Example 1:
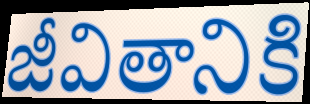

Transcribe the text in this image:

జీవితానికి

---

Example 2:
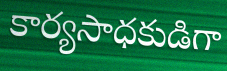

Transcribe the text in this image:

కార్యసాధకుడిగా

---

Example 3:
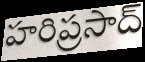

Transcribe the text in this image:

హరిప్రసాద్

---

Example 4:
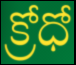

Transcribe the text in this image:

క్రోధో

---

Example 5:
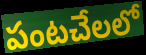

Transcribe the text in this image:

పంటచేలలో